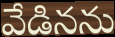
వేడినను